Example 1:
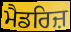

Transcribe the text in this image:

ਮੈਡਰਿਜ਼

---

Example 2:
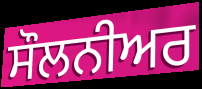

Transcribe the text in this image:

ਸੌਲਨੀਅਰ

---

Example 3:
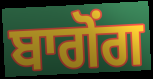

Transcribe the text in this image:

ਬਾਗੋਂਗ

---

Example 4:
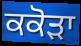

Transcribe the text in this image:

ਕਕੋੜਾ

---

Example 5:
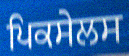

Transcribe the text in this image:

ਪਿਕਸੇਲਸ